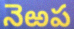
నెఱప